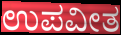
ಉಪವೀತ